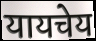
यायचेय